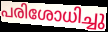
പരിശോധിച്ചു